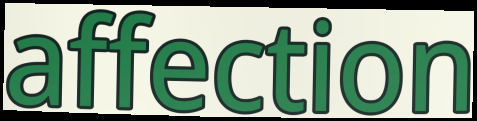
affection